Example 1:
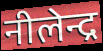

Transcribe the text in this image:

नीलेन्द्र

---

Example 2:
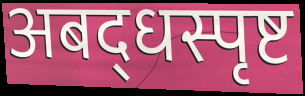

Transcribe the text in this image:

अबद्धस्पृष्ट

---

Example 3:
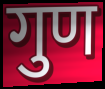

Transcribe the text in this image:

गुण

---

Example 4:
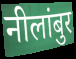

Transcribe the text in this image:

नीलांबुर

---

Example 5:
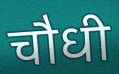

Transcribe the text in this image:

चौधी